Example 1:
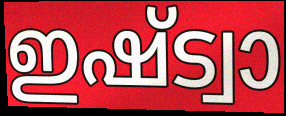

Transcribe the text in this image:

ഇഷ്ട്വാ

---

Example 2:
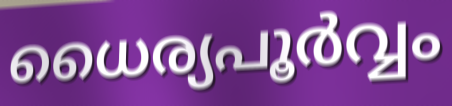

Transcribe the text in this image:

ധൈര്യപൂർവ്വം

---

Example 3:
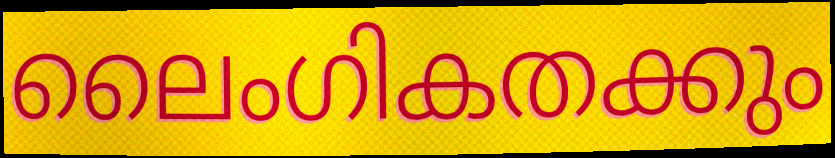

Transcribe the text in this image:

ലൈംഗികതക്കും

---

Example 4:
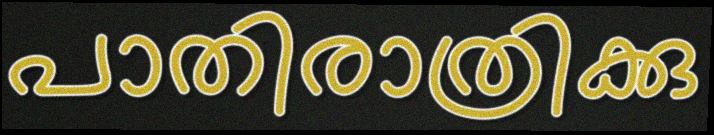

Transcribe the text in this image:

പാതിരാത്രിക്കു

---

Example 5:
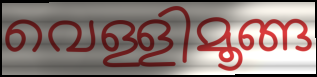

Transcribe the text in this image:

വെള്ളിമൂങ്ങ